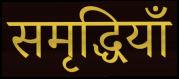
समृद्धियाँ